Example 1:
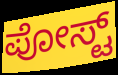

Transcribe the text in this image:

ಪೋಸ್ಟ್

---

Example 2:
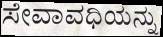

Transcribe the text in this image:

ಸೇವಾವಧಿಯನ್ನು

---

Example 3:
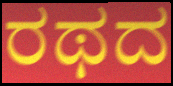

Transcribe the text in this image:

ರಥದ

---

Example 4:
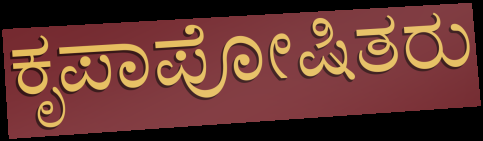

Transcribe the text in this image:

ಕೃಪಾಪೋಷಿತರು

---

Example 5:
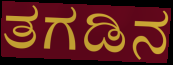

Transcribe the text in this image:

ತಗಡಿನ